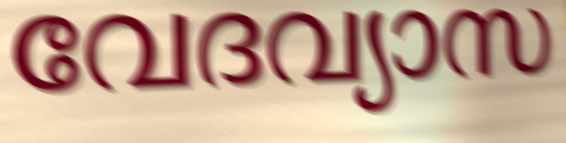
വേദവ്യാസ